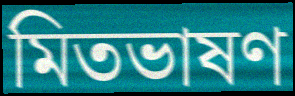
মিতভাষণ